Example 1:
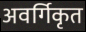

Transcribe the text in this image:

अवर्गिकृत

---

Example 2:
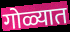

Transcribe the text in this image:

गोळ्यात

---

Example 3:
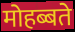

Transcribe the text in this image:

मोहब्बते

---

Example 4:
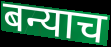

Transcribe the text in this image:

बन्याच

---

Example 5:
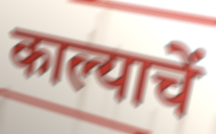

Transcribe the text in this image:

काल्याचें